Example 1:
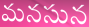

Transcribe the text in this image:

మనసున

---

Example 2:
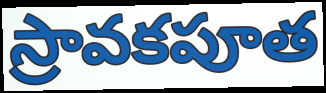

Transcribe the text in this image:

స్రావకపూత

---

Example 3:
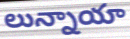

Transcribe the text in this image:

లున్నాయా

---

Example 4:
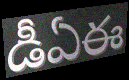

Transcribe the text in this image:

డీఏఈ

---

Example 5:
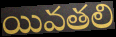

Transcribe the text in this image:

యివతలి